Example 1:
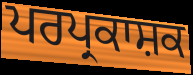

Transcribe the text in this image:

ਪਰਪ੍ਰਕਾਸ਼ਕ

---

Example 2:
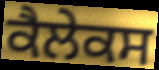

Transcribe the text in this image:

ਕੈਲੇਕਸ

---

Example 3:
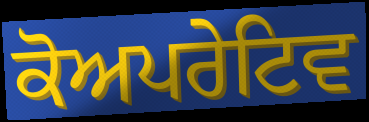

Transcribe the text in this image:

ਕੋਅਪਰੇਟਿਵ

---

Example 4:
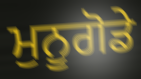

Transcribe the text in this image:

ਮੁਨੂਗੋਡੇ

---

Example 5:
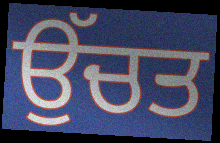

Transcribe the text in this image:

ਉੱਚਤ